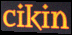
cikin